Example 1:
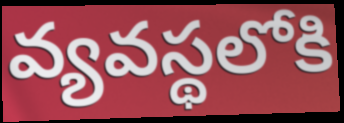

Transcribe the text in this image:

వ్యవస్థలోకి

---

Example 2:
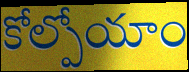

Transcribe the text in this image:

కోల్పోయాం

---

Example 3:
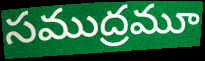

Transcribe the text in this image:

సముద్రమూ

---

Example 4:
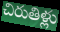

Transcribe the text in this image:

చిరుతిళ్లు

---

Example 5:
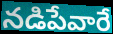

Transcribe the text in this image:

నడిపేవారే